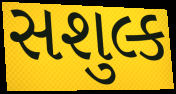
સશુલ્ક